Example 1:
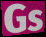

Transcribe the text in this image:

Gs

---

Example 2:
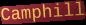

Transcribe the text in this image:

Camphill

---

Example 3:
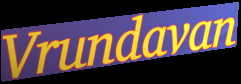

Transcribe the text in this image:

Vrundavan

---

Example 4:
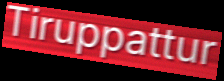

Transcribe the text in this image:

Tiruppattur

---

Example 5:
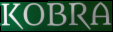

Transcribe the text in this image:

KOBRA